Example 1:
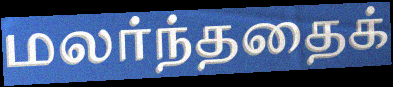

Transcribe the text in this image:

மலர்ந்ததைக்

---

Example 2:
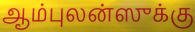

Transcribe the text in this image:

ஆம்புலன்ஸுக்கு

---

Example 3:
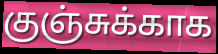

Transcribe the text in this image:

குஞ்சுக்காக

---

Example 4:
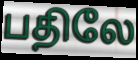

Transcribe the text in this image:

பதிலே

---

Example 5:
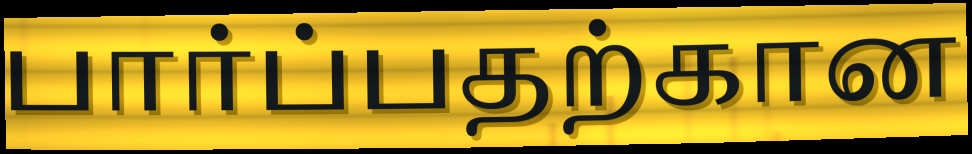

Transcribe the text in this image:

பார்ப்பதற்கான